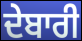
ਦੇਬਾਰੀ